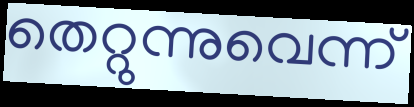
തെറ്റുന്നുവെന്ന്